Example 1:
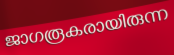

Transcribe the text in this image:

ജാഗരൂകരായിരുന്ന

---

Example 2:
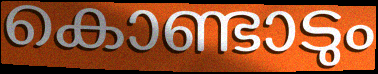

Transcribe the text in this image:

കൊണ്ടാടും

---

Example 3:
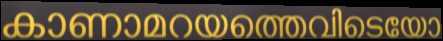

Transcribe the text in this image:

കാണാമറയത്തെവിടെയോ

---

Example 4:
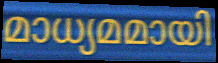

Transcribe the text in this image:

മാധ്യമമായി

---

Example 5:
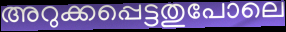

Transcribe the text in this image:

അറുക്കപ്പെട്ടതുപോലെ